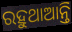
ରହୁଥାଆନ୍ତି